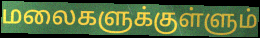
மலைகளுக்குள்ளும்